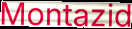
Montazid